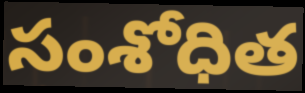
సంశోధిత